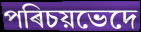
পৰিচয়ভেদে